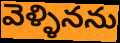
వెళ్ళినను